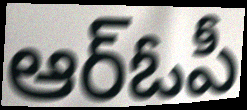
ఆర్ఓపీ